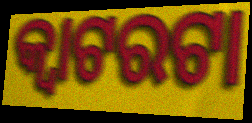
କ୍ଵାଟରଟା